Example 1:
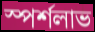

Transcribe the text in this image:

স্পর্শলাভ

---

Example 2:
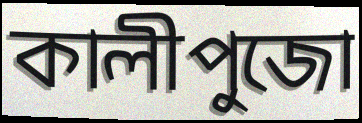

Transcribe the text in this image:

কালীপুজো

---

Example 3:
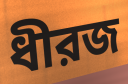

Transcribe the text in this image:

ধীরজ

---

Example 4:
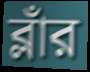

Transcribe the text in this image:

ব্লাঁর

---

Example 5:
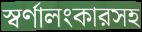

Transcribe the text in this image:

স্বর্ণালংকারসহ